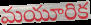
మయూరిక